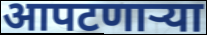
आपटणाऱ्या